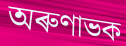
অৰুণাভক